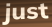
just